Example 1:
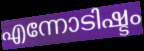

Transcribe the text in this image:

എന്നോടിഷ്ടം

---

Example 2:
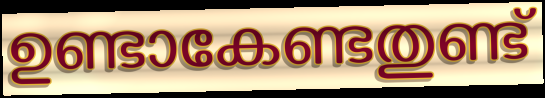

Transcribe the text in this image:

ഉണ്ടാകേണ്ടതുണ്ട്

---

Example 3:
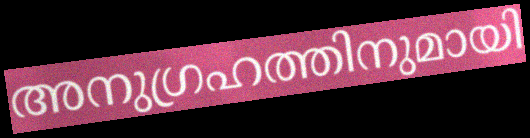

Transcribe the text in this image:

അനുഗ്രഹത്തിനുമായി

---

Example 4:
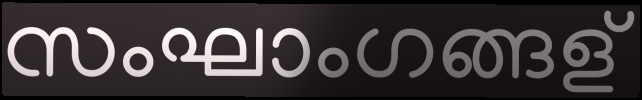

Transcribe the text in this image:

സംഘാംഗങ്ങള്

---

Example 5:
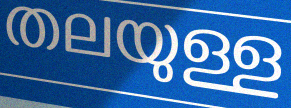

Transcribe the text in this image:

തലയുള്ള